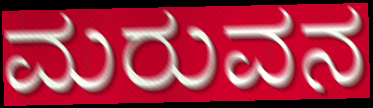
ಮರುವನ